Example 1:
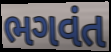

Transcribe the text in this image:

ભગવંત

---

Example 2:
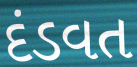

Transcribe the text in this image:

દંડવત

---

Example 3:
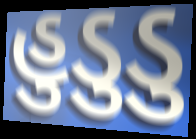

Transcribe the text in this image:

હુડુડુ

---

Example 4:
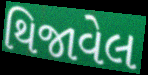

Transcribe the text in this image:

થિજાવેલ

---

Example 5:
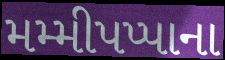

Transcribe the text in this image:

મમ્મીપપ્પાના